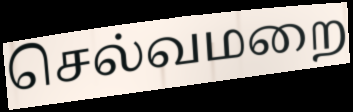
செல்வமறை